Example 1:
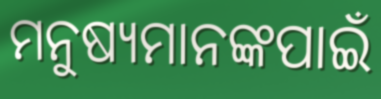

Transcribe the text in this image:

ମନୁଷ୍ୟମାନଙ୍କପାଇଁ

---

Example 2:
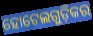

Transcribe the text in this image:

ହୋଟେଲଗୁଡ଼ିକର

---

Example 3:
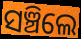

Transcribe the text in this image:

ସଞ୍ଚିଲେ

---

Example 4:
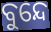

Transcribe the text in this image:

ବୁନ୍ଦେ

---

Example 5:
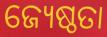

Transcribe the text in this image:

ଜ୍ୟେଷ୍ଠତା